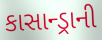
કાસાન્ડ્રાની